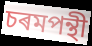
চৰমপন্থী